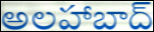
అలహాబాద్